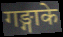
गङ्गाके